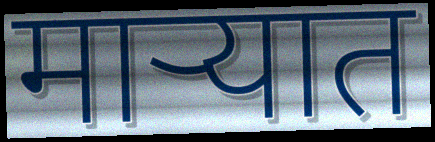
माऱ्यात